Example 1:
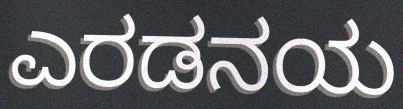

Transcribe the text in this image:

ಎರಡನಯ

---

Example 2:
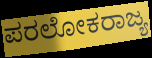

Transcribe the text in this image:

ಪರಲೋಕರಾಜ್ಯ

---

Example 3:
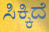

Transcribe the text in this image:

ಸಿಕ್ಕಿದೆ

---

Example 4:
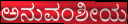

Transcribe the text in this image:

ಅನುವಂಶೀಯ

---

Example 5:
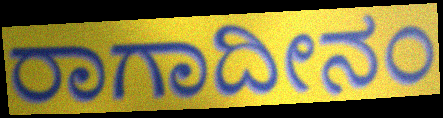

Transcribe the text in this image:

ರಾಗಾದೀನಂ